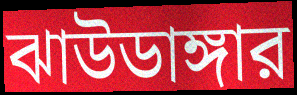
ঝাউডাঙ্গার